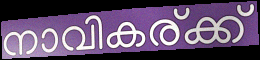
നാവികര്ക്ക്